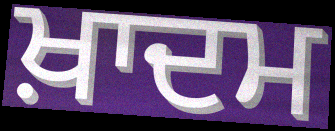
ਖ਼ਾਦਮ